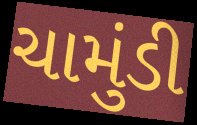
ચામુંડી